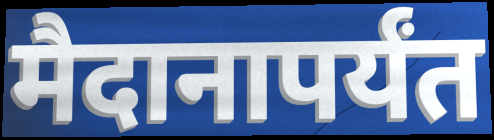
मैदानापर्यंत